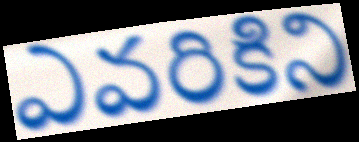
ఎవరికిని